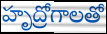
హృద్రోగాలతో